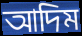
আদিম